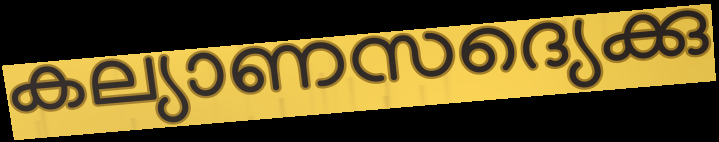
കല്യാണസദ്യെക്കു